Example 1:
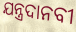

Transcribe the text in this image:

ଯନ୍ତ୍ରଦାନବୀ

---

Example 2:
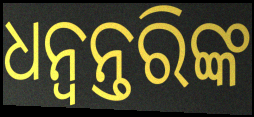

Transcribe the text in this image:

ଧନ୍ୱନ୍ତରିଙ୍କ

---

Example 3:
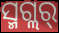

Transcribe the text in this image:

ସ୍ମଗ୍ଲର୍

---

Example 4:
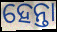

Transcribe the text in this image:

ହେନ୍ତା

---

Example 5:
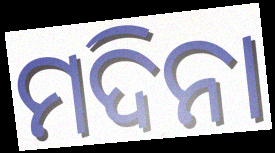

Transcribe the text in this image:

ମଦିନା